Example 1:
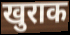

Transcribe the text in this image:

खुराक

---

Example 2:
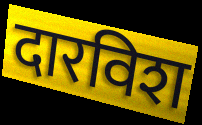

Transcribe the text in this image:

दारविश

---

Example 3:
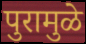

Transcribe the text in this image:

पुरामुळे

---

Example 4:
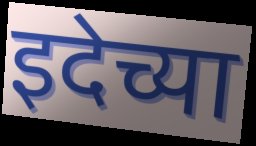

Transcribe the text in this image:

इदेच्या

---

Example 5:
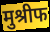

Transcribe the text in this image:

मुश्रीफ